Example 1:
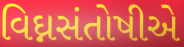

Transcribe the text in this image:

વિઘ્નસંતોષીએ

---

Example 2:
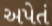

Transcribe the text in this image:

અપેતં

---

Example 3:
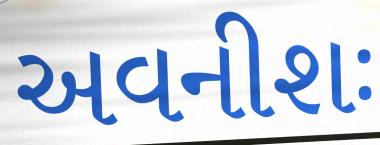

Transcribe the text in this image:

અવનીશઃ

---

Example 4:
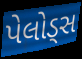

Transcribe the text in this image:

પેલોડ્સ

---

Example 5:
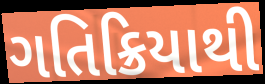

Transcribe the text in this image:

ગતિક્રિયાથી